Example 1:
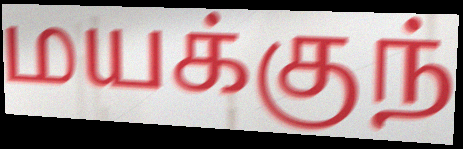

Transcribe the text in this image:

மயக்குந்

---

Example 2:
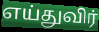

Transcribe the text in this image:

எய்துவிர்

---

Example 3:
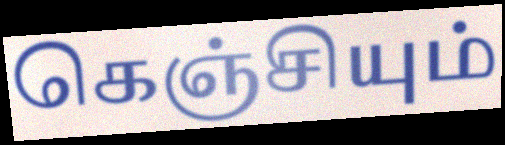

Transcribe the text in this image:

கெஞ்சியும்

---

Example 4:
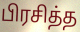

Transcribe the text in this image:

பிரசித்த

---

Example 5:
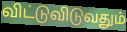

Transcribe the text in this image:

விட்டுவிடுவதும்